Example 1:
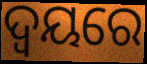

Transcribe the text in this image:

ଦ୍ୱୟରେ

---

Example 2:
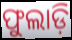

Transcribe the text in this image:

ଫୁଲାଡ଼ି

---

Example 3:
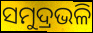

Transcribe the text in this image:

ସମୁଦ୍ରଭଳି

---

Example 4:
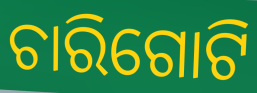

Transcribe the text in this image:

ଚାରିଗୋଟି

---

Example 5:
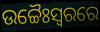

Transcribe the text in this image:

ଉଚ୍ଚୈଃସ୍ୱରରେ